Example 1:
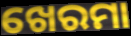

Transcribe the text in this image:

ଖେରମା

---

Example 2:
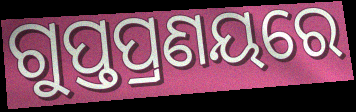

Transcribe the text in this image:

ଗୁପ୍ତପ୍ରଣୟରେ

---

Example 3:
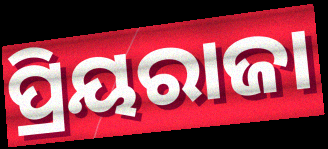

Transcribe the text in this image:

ପ୍ରିୟରାଜା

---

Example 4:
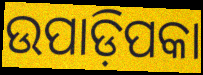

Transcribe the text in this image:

ଉପାଡ଼ିପକା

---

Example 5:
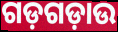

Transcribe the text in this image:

ଗଡ଼ଗଡ଼ାଉ